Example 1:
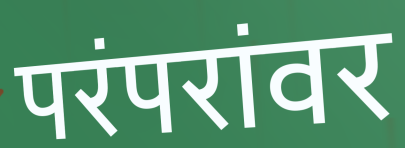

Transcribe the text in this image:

परंपरांवर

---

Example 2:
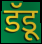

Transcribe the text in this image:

डॅडू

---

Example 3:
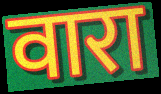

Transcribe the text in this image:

वारा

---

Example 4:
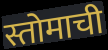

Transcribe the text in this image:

स्तोमाची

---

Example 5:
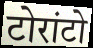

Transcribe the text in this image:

टोरांटो